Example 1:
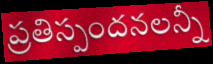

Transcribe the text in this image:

ప్రతిస్పందనలన్నీ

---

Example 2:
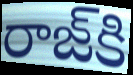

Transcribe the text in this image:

రాజ్‌కి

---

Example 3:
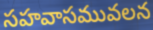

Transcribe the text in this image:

సహవాసమువలన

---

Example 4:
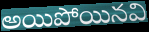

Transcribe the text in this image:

అయిపోయినవి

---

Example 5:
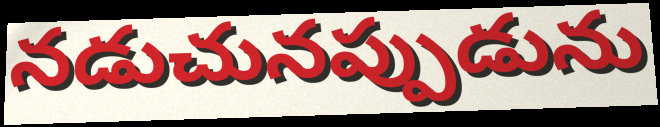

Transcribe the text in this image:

నడుచునప్పుడును